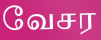
வேசர